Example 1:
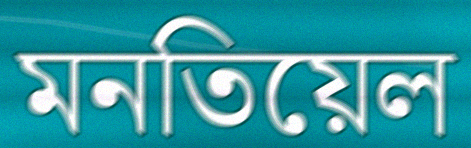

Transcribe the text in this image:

মনতিয়েল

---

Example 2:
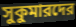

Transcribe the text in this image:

সুকুমারদের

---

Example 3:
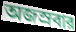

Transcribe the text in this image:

অজস্রবার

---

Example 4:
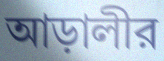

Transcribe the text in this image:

আড়ালীর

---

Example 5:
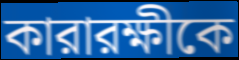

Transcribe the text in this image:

কারারক্ষীকে